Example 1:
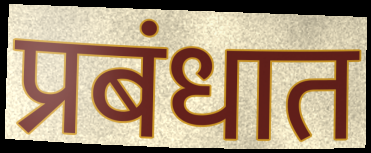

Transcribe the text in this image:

प्रबंधात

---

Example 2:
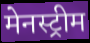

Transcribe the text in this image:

मेनस्ट्रीम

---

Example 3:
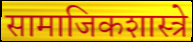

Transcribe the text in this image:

सामाजिकशास्त्रे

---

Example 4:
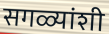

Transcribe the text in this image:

सगळ्यांशी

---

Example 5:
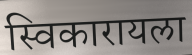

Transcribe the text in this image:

स्विकारायला